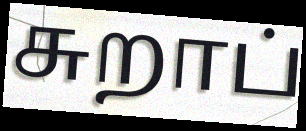
சுறாப்